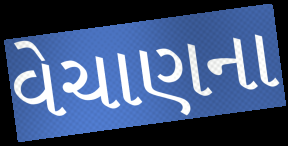
વેચાણના